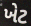
ખેટ